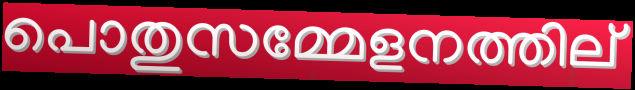
പൊതുസമ്മേളനത്തില്